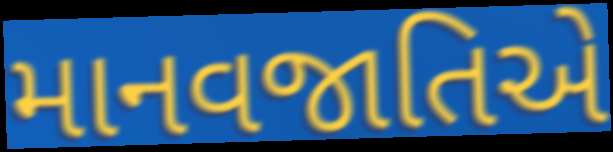
માનવજાતિએ